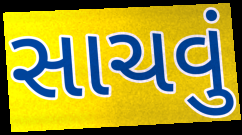
સાચવું